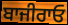
ਬਾਜੀਰਾਓ